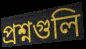
প্রশ্নগুলি